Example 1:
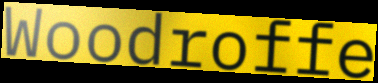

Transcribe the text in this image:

Woodroffe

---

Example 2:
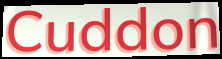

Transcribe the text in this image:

Cuddon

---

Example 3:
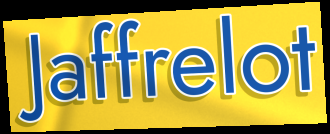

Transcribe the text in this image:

Jaffrelot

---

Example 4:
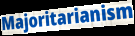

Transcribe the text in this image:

Majoritarianism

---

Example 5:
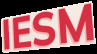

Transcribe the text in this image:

IESM